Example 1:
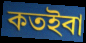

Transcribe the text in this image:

কতইবা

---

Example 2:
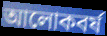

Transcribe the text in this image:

আলোকবর্ষ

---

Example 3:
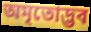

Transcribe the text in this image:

অমৃতোদ্ভব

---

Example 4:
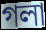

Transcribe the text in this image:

গলা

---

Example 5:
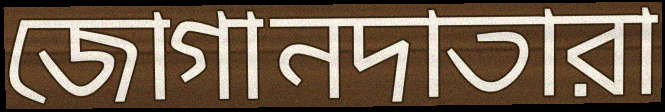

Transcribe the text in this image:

জোগানদাতারা